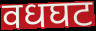
वधघट